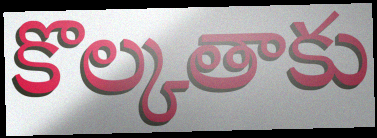
కొల్కతాకు